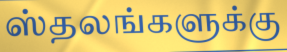
ஸ்தலங்களுக்கு